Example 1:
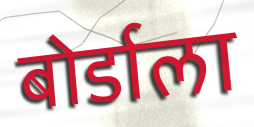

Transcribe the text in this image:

बोर्डाला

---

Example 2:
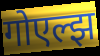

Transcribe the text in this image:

गोएल्झ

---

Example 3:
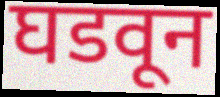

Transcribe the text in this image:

घडवून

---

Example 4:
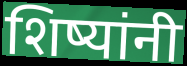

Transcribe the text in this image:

शिष्यांनी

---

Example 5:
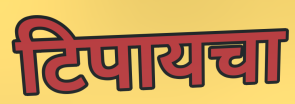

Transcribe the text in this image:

टिपायचा